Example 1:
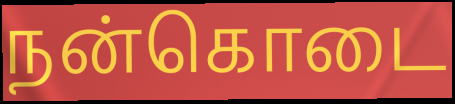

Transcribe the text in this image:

நன்கொடை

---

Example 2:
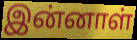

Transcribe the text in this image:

இன்னாள்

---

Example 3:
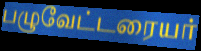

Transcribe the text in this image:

பழுவேட்டரையர்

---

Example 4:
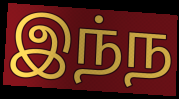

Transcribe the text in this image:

இந்ந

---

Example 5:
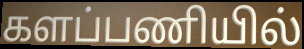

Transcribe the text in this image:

களப்பணியில்